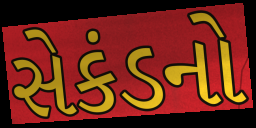
સેકંડનો